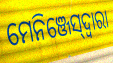
ମେନିଞ୍ଜେସ୍‌ଦ୍ୱାରା